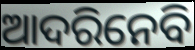
ଆଦରିନେବି